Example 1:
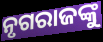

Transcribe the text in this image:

ନୃଗରାଜଙ୍କୁ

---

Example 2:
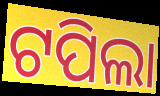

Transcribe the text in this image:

ଟପିଲା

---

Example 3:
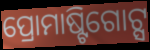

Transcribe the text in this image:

ପ୍ରୋମାଷ୍ଟିଗୋଟ୍ସ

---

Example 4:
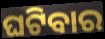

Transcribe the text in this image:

ଘଟିବାର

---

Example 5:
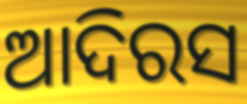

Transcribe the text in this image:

ଆଦିରସ